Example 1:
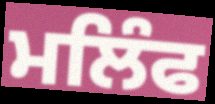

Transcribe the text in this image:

ਮਲਿੰਫ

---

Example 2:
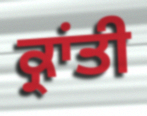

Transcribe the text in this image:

ਕ੍ਰਾਂਤੀ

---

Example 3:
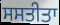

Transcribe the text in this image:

ਸਸਤੀਤਾ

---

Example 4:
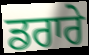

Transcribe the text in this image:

ਡਰਾਰੇ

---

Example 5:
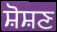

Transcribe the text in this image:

ਸ਼ੋਸ਼ਣ